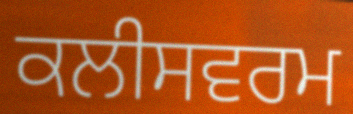
ਕਲੀਸਵਰਮ